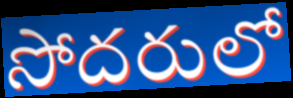
సోదరులో